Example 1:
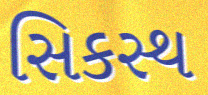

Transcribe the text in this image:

સિકસ્થ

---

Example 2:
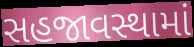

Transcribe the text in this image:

સહજાવસ્થામાં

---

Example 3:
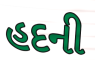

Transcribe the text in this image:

હદની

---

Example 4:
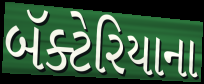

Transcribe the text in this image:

બૅક્ટેરિયાના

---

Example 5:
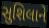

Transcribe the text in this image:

સુશિલાને